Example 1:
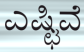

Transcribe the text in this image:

ಎಷ್ಟಿವೆ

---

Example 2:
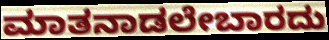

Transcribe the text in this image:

ಮಾತನಾಡಲೇಬಾರದು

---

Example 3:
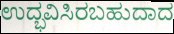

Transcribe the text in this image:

ಉದ್ಭವಿಸಿರಬಹುದಾದ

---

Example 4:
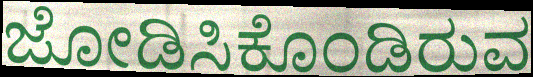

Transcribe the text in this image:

ಜೋಡಿಸಿಕೊಂಡಿರುವ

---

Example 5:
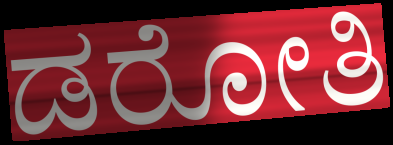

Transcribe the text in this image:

ಡರೋತಿ